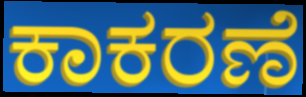
ಕಾಕರಣೆ